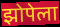
झोपेला